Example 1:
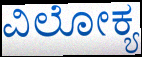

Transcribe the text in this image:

ವಿಲೋಕ್ಯ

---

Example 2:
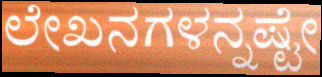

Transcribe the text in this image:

ಲೇಖನಗಳನ್ನಷ್ಟೇ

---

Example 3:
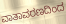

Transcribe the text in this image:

ವಾತಾವರಣದಿಂದ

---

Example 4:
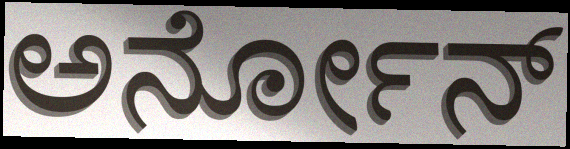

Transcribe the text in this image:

ಅರ್ನೋನ್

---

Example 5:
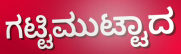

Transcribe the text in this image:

ಗಟ್ಟಿಮುಟ್ಟಾದ